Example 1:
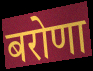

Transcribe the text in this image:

बरोणा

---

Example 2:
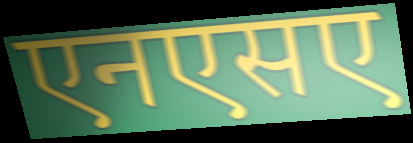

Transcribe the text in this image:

एनएसए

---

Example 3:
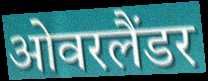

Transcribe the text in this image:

ओवरलैंडर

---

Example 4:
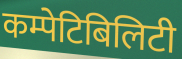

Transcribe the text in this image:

कम्पेटिबिलिटी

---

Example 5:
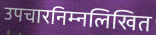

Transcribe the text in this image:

उपचारनिम्नलिखित